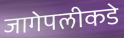
जागेपलीकडे